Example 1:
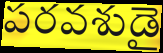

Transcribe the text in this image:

పరవశుడై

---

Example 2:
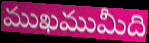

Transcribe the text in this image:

ముఖముమీది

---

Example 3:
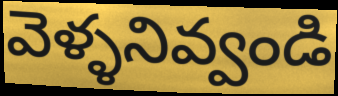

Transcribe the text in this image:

వెళ్ళనివ్వండి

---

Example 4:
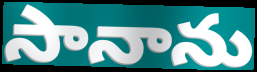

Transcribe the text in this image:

సానాను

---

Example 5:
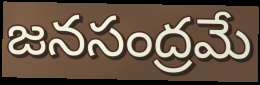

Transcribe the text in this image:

జనసంద్రమే